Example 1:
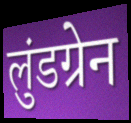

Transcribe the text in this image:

लुंडग्रेन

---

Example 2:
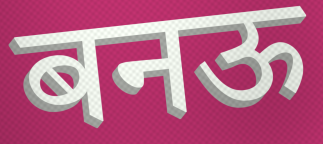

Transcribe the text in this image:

बनऊ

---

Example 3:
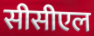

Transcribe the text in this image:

सीसीएल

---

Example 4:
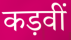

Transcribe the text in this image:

कड़वीं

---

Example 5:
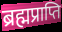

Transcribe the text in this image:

ब्रह्मप्राप्ति